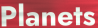
Planets